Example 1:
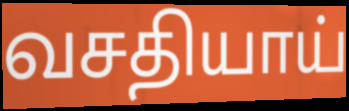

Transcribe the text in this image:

வசதியாய்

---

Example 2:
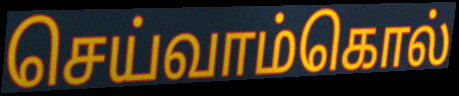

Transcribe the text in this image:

செய்வாம்கொல்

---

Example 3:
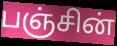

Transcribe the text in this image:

பஞ்சின்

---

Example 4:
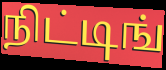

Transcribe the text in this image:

நிட்டிங்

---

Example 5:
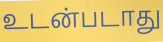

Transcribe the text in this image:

உடன்படாது